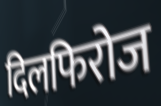
दिलफिरोज